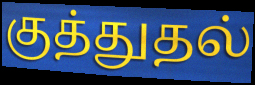
குத்துதல்